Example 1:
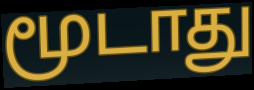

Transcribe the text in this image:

மூடாது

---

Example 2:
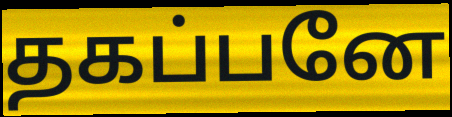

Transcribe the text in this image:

தகப்பனே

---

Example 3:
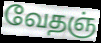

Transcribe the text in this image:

வேதஞ்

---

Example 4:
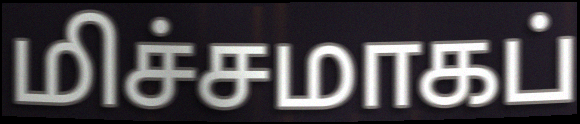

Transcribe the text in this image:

மிச்சமாகப்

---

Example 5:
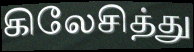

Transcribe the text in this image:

கிலேசித்து